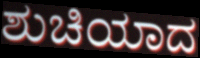
ಶುಚಿಯಾದ